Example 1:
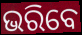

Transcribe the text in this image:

ଭରିବେ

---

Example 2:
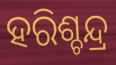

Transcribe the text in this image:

ହରିଶ୍ଚନ୍ଦ୍ର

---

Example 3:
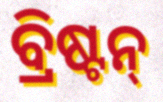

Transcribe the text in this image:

ବ୍ରିଷ୍ଟନ୍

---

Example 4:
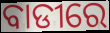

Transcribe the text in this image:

ବାଡୀରେ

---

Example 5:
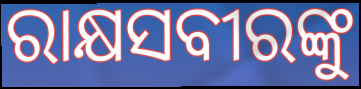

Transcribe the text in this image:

ରାକ୍ଷସବୀରଙ୍କୁ